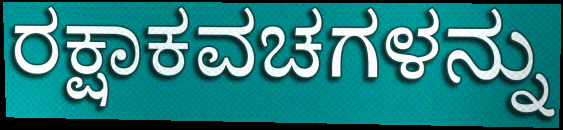
ರಕ್ಷಾಕವಚಗಳನ್ನು